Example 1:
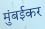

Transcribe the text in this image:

मुंबईकर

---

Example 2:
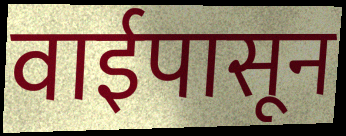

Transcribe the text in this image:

वाईपासून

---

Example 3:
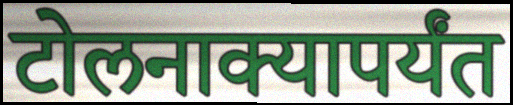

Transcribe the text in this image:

टोलनाक्यापर्यंत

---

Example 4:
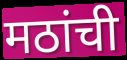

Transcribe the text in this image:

मठांची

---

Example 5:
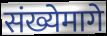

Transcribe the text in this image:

संख्येमागे